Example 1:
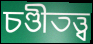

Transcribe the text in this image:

চণ্ডীতত্ত্ব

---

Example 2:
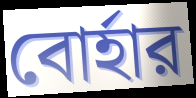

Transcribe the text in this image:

বোর্হার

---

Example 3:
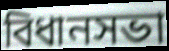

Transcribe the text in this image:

বিধানসভা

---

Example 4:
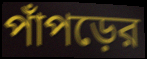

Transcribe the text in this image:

পাঁপড়ের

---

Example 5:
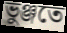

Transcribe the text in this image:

ভুঞ্জতে